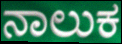
ನಾಲುಕ